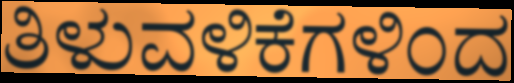
ತಿಳುವಳಿಕೆಗಳಿಂದ